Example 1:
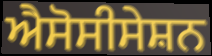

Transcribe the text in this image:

ਐਸੋਸੀਸੇਸ਼ਨ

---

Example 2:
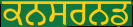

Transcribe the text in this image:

ਕਨਸਰਨਡ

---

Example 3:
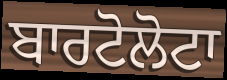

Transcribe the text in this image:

ਬਾਰਟੋਲੋਟਾ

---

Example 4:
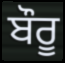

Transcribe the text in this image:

ਬੌਰੂ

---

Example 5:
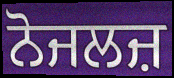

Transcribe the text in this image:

ਨੋਜਲਜ਼